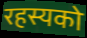
रहस्यको